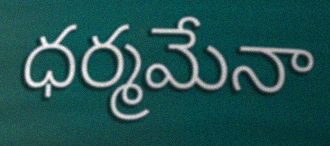
ధర్మమేనా